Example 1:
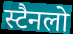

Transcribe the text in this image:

स्टैनलो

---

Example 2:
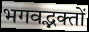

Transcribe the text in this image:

भगवद्भक्तों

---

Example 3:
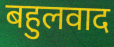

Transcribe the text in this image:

बहुलवाद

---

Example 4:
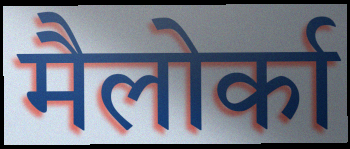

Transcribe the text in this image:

मैलोर्का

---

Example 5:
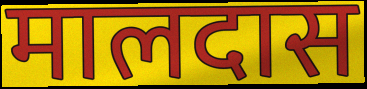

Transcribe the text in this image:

मालदास